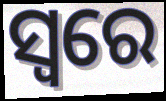
ସ୍ବରେ